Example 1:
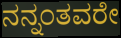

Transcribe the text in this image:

ನನ್ನಂತವರೇ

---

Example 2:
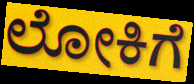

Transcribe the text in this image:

ಲೋಕಿಗೆ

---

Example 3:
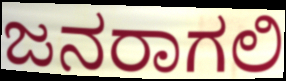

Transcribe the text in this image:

ಜನರಾಗಲಿ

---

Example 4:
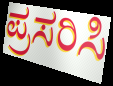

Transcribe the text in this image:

ಪ್ರಸರಿಸಿ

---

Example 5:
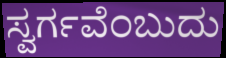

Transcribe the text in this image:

ಸ್ವರ್ಗವೆಂಬುದು